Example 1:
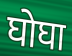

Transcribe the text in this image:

घोघा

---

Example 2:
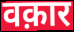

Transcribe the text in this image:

वक़ार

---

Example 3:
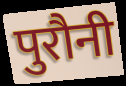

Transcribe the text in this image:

पुरौनी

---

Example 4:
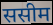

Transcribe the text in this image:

ससीम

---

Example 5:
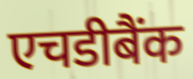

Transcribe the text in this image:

एचडीबैंक